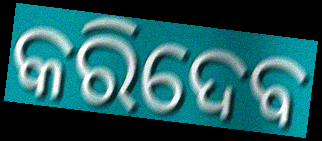
କରିଦେବ